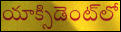
యాక్సిడెంట్‌లో